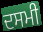
ਦਸਮੀ